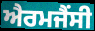
ਐਰਮਜੈਂਸੀ